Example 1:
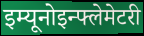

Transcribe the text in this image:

इम्यूनोइन्फ्लेमेटरी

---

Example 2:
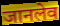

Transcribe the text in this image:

जानलेव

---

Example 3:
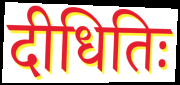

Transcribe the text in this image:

दीधितिः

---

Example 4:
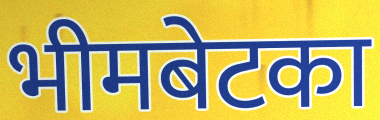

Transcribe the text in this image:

भीमबेटका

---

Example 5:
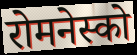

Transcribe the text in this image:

रोमनेस्को